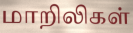
மாறிலிகள்